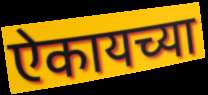
ऐकायच्या